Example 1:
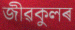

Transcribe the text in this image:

জীৱকুলৰ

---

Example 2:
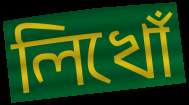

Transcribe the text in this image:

লিখোঁ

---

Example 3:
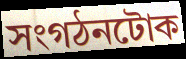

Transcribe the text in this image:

সংগঠনটোক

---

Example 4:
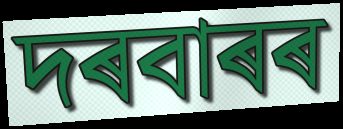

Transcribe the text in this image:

দৰবাৰৰ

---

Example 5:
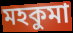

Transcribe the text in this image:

মহকুমা